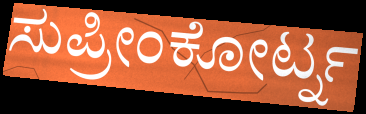
ಸುಪ್ರೀಂಕೋರ್ಟ್ನ